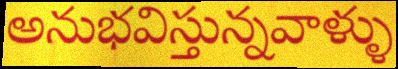
అనుభవిస్తున్నవాళ్ళు